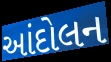
આંદોલન